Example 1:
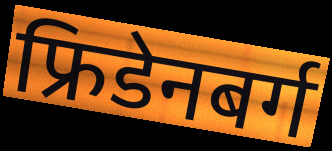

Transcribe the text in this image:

फ्रिडेनबर्ग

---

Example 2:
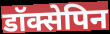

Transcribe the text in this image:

डॉक्सेपिन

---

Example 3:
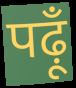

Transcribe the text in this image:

पढ़ूँ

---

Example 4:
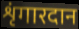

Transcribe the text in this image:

शृंगारदान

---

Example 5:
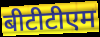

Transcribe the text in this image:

बीटीटीएम